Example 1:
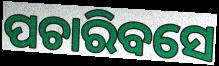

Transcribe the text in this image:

ପଚାରିବସେ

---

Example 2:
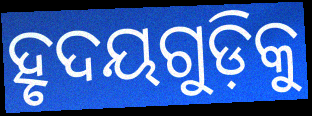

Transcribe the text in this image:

ହୃଦୟଗୁଡ଼ିକୁ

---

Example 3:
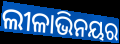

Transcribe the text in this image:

ଲୀଳାଭିନୟର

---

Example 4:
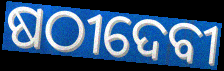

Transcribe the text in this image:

ଷଠୀଦେବୀ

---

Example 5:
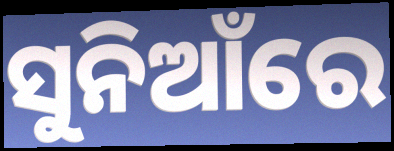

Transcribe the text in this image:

ସୁନିଆଁରେ